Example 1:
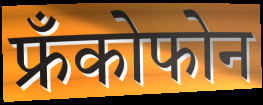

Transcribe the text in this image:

फ्रँकोफोन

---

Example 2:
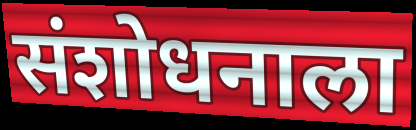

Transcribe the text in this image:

संशोधनाला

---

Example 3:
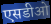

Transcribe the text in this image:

एसडीओ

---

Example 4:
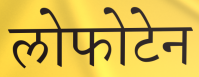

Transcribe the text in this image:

लोफोटेन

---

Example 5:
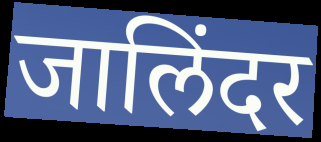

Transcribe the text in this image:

जालिंदर